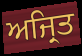
ਅਜ੍ਰਿਤ